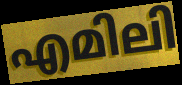
എമിലി